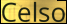
Celso